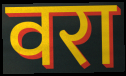
वरा